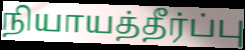
நியாயத்தீர்ப்பு